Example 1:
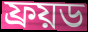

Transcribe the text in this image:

ফ্ৰয়ড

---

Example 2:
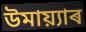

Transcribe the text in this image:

উমায়্যাৰ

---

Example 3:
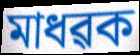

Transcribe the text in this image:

মাধৱক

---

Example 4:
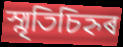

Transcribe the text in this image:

স্মৃতিচিহ্নৰ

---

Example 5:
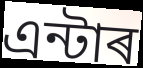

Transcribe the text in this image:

এন্টাৰ